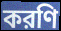
করণি